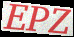
EPZ